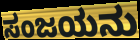
ಸಂಜಯನು